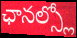
ఛానల్స్లో